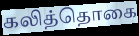
கலித்தொகை